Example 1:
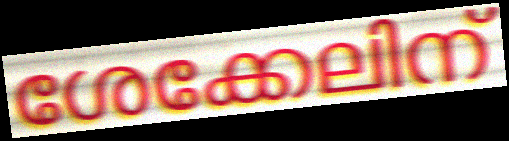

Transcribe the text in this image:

ശേക്കേലിന്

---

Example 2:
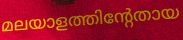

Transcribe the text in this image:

മലയാളത്തിന്റേതായ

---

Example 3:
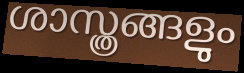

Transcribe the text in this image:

ശാസ്ത്രങ്ങളും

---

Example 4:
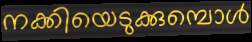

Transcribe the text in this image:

നക്കിയെടുക്കുമ്പൊൾ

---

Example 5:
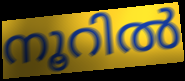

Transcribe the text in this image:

നൂറിൽ